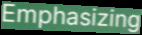
Emphasizing